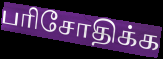
பரிசோதிக்க